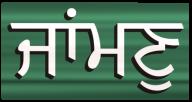
ਜਾਂਮਣੁ